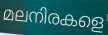
മലനിരകളെ